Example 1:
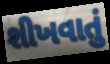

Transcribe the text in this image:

શીખવાતું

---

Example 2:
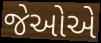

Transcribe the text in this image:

જેઓએ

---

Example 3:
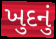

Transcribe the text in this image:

ખુદનું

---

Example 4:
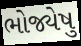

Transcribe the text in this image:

ભોજ્યેષુ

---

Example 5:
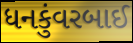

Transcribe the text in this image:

ધનકુંવરબાઈ